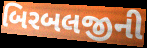
બિરબલજીની